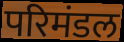
परिमंडल